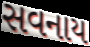
સવનાય